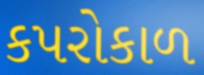
કપરોકાળ